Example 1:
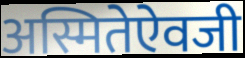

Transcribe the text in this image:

अस्मितेऐवजी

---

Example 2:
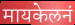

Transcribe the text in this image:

मायकेलनं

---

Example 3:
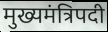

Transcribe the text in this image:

मुख्यमंत्रिपदी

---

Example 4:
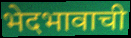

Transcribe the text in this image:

भेदभावाची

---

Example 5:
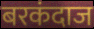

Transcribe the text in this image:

बरकंदाज